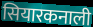
सियारकनाली